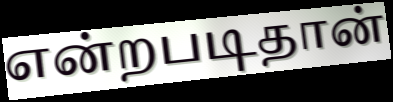
என்றபடிதான்